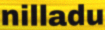
nilladu